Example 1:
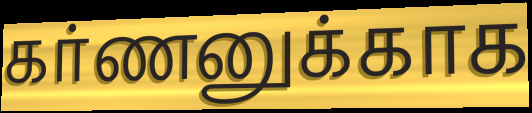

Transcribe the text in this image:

கர்ணனுக்காக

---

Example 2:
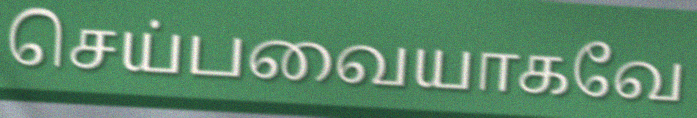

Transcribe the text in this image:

செய்பவையாகவே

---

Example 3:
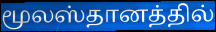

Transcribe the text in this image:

மூலஸ்தானத்தில்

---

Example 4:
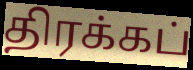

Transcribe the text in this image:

திரக்கப்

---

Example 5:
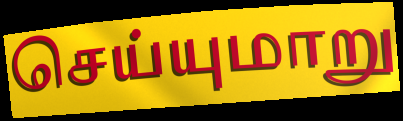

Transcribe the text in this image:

செய்யுமாறு